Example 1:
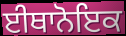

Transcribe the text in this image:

ਈਥਾਨੋਇਕ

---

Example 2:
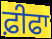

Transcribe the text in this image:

ਫ਼ੀਫਾ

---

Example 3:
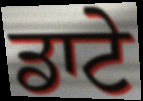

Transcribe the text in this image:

ਡਾਟੇ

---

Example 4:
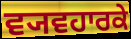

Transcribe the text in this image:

ਵ੍ਯਵਹਾਰਕੇ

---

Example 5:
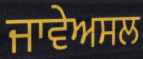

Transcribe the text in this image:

ਜਾਵੇਅਸਲ